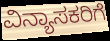
ವಿನ್ಯಾಸಕರಿಗೆ